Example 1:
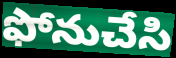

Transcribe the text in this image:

ఫోనుచేసి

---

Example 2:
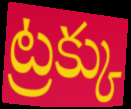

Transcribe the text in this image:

ట్రక్కు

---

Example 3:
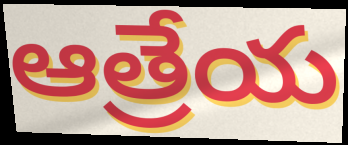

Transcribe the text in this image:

ఆత్రేయ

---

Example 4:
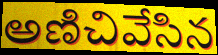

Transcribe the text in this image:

అణిచివేసిన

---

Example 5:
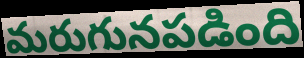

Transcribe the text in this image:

మరుగునపడింది